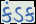
કંડક